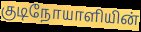
குடிநோயாளியின்